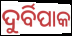
ଦୁର୍ବିପାକ